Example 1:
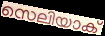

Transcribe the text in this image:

സെലിയാക്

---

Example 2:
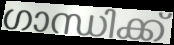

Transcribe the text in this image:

ഗാന്ധിക്ക്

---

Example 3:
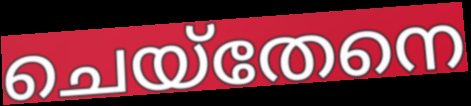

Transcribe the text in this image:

ചെയ്തേനെ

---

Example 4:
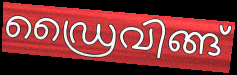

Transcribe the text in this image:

ഡ്രൈവിങ്ങ്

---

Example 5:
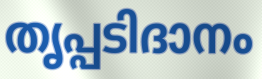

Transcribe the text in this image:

തൃപ്പടിദാനം